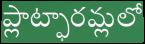
ప్లాట్ఫారమ్లలో